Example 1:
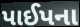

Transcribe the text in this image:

પાઈપના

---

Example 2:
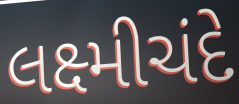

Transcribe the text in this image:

લક્ષ્મીચંદે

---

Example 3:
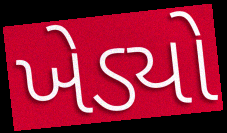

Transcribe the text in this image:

ખેડ્યો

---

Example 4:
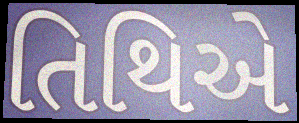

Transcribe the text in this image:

તિથિએ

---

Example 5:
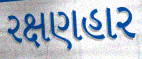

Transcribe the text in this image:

રક્ષણહાર